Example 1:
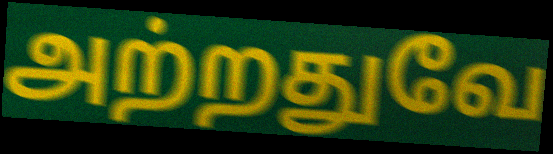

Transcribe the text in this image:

அற்றதுவே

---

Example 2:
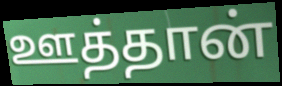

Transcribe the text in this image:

ஊத்தான்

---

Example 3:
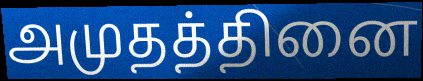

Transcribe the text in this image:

அமுதத்தினை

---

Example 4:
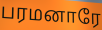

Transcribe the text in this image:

பரமனாரே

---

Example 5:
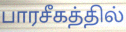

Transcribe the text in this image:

பாரசீகத்தில்